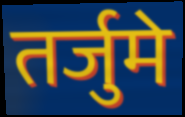
तर्जुमे